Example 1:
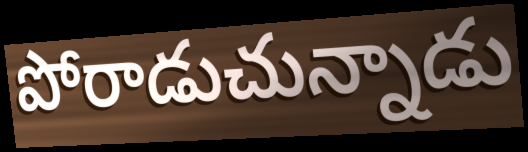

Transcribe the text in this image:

పోరాడుచున్నాడు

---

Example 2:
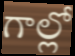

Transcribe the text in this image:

గాల్లో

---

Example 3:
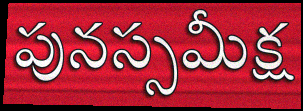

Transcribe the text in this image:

పునస్సమీక్ష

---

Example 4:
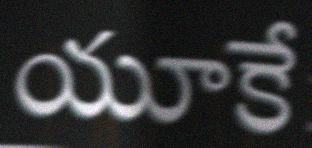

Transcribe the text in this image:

యూకే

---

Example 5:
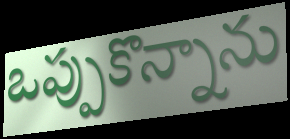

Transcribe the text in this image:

ఒప్పుకొన్నాను